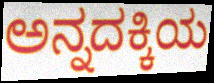
ಅನ್ನದಕ್ಕಿಯ